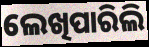
ଲେଖିପାରିଲି